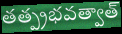
తత్ప్రభవత్వాత్